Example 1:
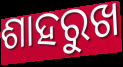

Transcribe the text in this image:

ଶାହରୁଖ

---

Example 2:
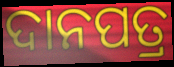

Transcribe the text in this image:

ଦାନପତ୍ର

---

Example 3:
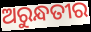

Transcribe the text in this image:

ଅରୁନ୍ଧତୀର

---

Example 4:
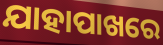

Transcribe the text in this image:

ଯାହାପାଖରେ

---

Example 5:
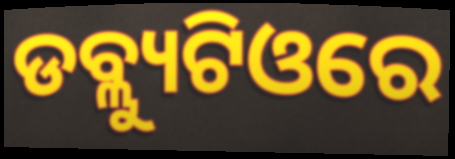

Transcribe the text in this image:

ଡବ୍ଲ୍ୟୁଟିଓରେ